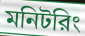
মনিটরিং